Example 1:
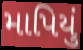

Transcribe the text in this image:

માપિયું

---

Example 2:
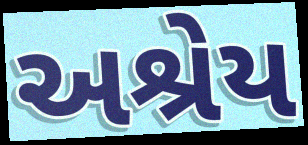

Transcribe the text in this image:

અશ્રેય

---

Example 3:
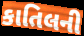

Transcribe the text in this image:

કાતિલની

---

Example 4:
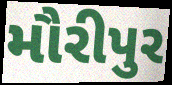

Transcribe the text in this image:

મૌરીપુર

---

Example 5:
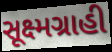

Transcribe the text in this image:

સૂક્ષ્મગ્રાહી